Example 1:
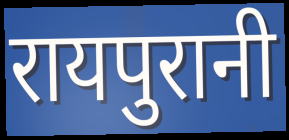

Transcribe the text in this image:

रायपुरानी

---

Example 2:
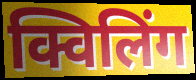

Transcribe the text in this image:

क्विलिंग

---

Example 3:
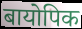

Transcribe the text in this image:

बायोपिक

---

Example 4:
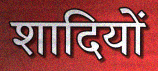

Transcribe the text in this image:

शादियों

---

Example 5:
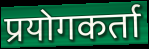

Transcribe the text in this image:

प्रयोगकर्ता